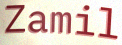
Zamil